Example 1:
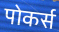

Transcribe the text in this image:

पोकर्स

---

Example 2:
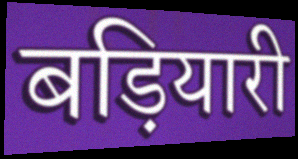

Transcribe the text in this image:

बड़ियारी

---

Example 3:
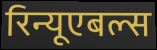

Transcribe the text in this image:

रिन्यूएबल्स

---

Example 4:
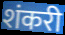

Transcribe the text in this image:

शंकरी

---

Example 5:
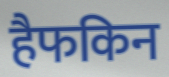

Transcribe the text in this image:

हैफकिन